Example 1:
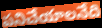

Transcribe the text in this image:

పనిచేయాలనేది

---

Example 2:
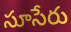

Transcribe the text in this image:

సూసేరు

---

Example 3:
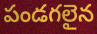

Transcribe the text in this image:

పండగలైన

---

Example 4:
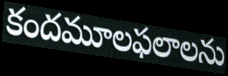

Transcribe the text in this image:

కందమూలఫలాలను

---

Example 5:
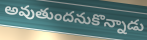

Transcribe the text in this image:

అవుతుందనుకొన్నాడు